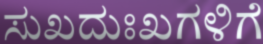
ಸುಖದುಃಖಗಳಿಗೆ